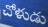
చోళుడు